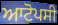
ਆਟੋਪਸੀ